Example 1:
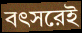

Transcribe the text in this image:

বৎসরেই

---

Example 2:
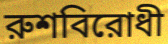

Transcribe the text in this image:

রুশবিরোধী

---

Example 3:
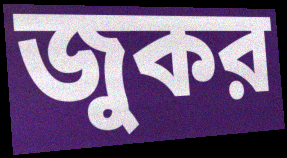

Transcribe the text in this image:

জুকর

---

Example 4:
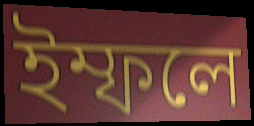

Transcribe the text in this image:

ইম্ফলে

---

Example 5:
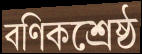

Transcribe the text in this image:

বণিকশ্রেষ্ঠ